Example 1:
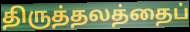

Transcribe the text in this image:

திருத்தலத்தைப்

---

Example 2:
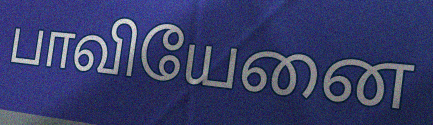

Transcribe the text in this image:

பாவியேனை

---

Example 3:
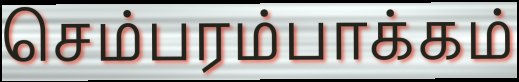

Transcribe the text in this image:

செம்பரம்பாக்கம்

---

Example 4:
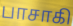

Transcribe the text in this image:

பாசாகி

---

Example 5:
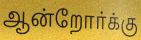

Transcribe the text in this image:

ஆன்றோர்க்கு